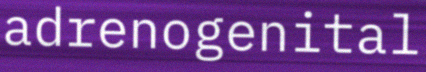
adrenogenital